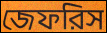
জেফরিস